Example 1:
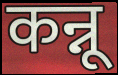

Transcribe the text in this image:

कन्नू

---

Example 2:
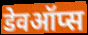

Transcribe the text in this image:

डेवऑप्स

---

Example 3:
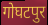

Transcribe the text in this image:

गोघटपुर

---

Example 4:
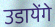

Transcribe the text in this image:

उडायेंगे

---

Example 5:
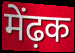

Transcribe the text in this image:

मेंढ़क